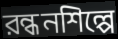
রন্ধনশিল্পে